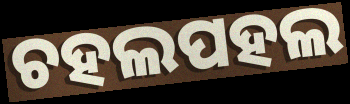
ଚହଲପହଲ